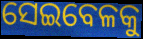
ସେଇବେଳକୁ